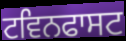
ਟਵਿਨਫਾਸਟ